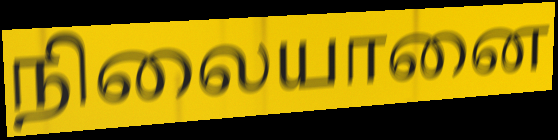
நிலையானை